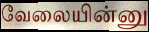
வேலையின்னு